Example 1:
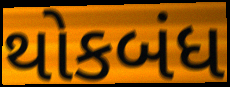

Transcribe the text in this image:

થોકબંધ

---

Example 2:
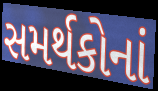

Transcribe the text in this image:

સમર્થકોનાં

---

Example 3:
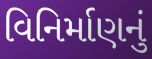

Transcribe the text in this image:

વિનિર્માણનું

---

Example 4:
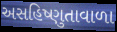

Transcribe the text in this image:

અસહિષ્ણુતાવાળા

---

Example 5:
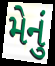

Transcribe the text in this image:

મેનું